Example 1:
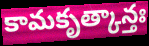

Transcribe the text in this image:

కామకృత్కాన్తః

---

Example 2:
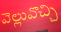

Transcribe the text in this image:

వెల్లువొచ్చి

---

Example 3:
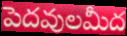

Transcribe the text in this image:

పెదవులమీద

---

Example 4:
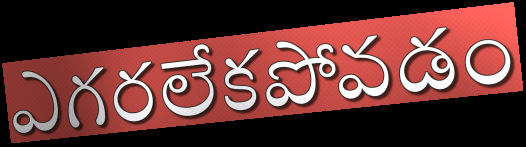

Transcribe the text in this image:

ఎగరలేకపోవడం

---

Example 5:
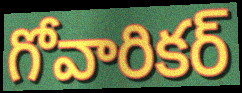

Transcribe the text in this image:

గోవారికర్